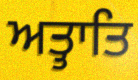
ਅਤ੍ਤਾਤਿ